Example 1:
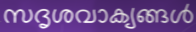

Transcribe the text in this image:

സദൃശവാക്യങ്ങൾ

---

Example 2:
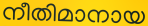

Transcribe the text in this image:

നീതിമാനായ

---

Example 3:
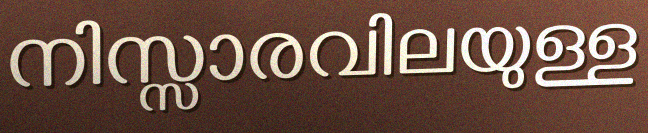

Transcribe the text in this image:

നിസ്സാരവിലയുള്ള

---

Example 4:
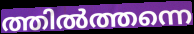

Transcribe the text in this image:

ത്തിൽത്തന്നെ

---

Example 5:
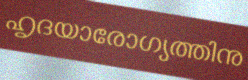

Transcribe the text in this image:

ഹൃദയാരോഗ്യത്തിനു